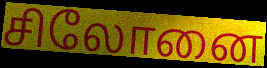
சிலோனை